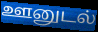
ஊனுடல்